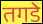
तगडे